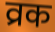
व्रक